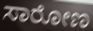
ಸಾರೋಣ